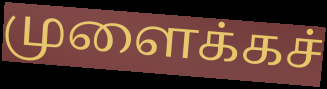
முளைக்கச்